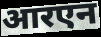
आरएन